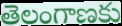
తెలంగాణకు